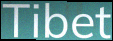
Tibet